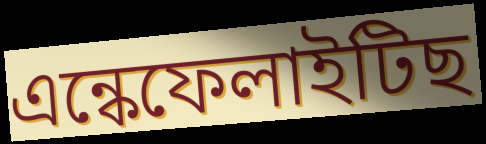
এন্কেফেলাইটিছ